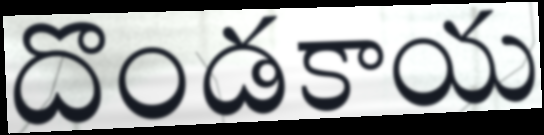
దొండకాయ